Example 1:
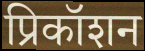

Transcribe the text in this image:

प्रिकॉशन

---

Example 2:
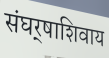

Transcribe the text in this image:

संघर्षाशिवाय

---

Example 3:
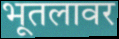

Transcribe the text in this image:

भूतलावर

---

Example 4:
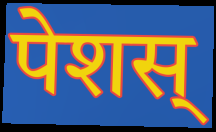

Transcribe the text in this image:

पेशस्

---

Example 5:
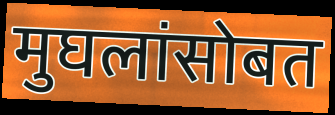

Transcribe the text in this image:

मुघलांसोबत